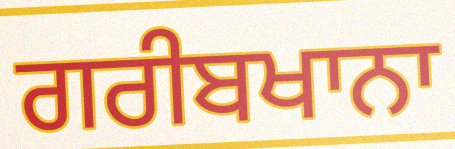
ਗਰੀਬਖਾਨਾ